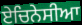
ਏਚਿਨੇਸੀਆ